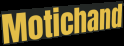
Motichand